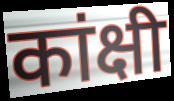
कांक्षी